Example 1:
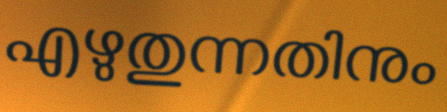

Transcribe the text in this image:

എഴുതുന്നതിനും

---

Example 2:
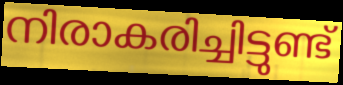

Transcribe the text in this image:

നിരാകരിച്ചിട്ടുണ്ട്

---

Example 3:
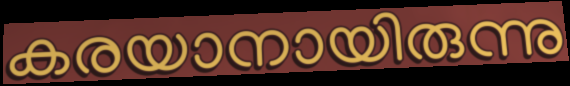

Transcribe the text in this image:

കരയാനായിരുന്നു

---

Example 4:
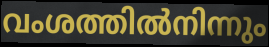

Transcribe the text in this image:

വംശത്തിൽനിന്നും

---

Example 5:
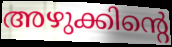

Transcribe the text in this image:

അഴുക്കിന്റെ